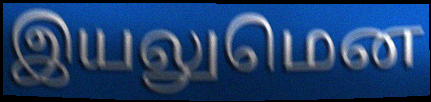
இயலுமென